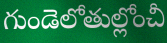
గుండెలోతుల్లోంచీ